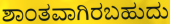
ಶಾಂತವಾಗಿರಬಹುದು